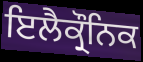
ਇਲੈਕ੍ਰੌਨਿਕ